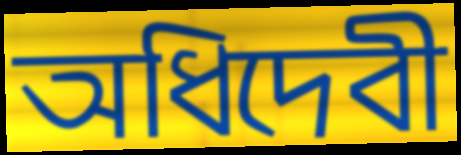
অধিদেবী